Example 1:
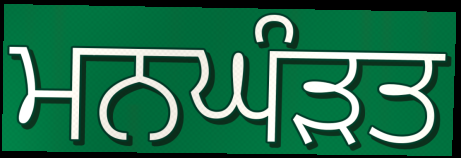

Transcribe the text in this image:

ਮਨਘੰੜਤ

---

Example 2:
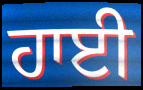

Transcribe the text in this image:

ਹਾਈ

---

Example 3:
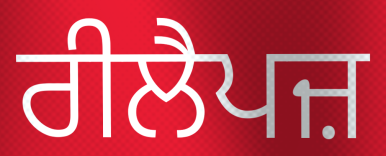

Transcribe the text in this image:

ਰੀਲੈਪਜ਼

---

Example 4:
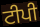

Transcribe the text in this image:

ਟੀਪੀ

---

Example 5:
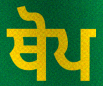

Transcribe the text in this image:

ਥੋਪ